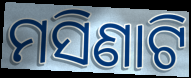
ମସିଣାଟି